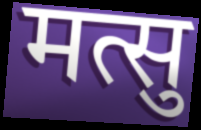
मत्सु